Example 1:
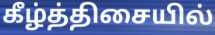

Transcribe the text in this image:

கீழ்த்திசையில்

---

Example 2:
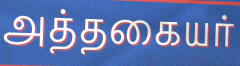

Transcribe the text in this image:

அத்தகையர்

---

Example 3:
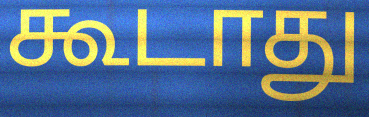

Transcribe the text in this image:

கூடாது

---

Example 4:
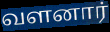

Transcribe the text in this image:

வளனார்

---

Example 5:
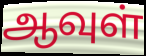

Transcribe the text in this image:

ஆவுள்